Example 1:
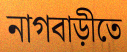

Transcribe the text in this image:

নাগবাড়ীতে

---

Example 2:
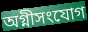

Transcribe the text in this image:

অগ্নীসংযোগ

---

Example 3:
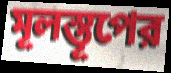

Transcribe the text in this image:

মূলস্তূপের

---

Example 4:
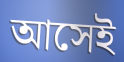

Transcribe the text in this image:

আসেই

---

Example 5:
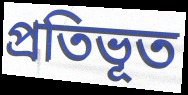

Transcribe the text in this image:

প্রতিভূত